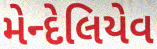
મેન્દેલિયેવ